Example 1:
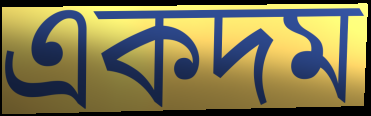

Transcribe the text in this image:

একদম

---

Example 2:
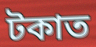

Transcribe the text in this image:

টকাত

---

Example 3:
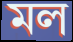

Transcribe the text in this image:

মল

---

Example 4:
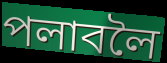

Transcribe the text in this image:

পলাবলৈ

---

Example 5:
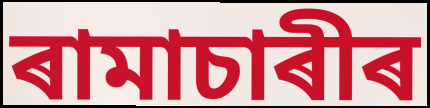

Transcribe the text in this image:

ৰামাচাৰীৰ